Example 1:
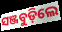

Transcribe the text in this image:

ସଞ୍ଜବୁଡ଼ିଲେ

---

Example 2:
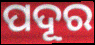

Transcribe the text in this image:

ପଦୂର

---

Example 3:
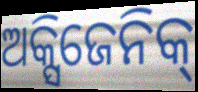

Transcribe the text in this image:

ଅକ୍ସିଜେନିକ୍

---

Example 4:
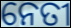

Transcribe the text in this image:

ନେତୀ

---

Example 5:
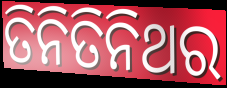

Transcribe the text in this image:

ତିନିତିନିଥର